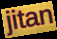
jitan